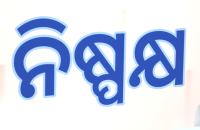
ନିଷ୍ପକ୍ଷ